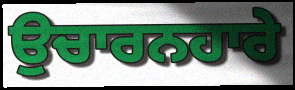
ਉਚਾਰਨਹਾਰੇ